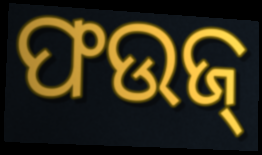
ଫଉଜ୍